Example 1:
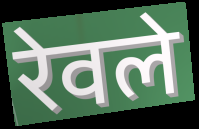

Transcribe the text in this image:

रेवले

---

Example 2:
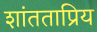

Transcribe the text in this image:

शांतताप्रिय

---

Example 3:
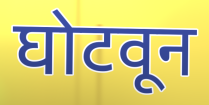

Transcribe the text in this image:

घोटवून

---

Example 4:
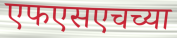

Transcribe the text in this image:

एफएसएचच्या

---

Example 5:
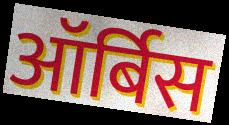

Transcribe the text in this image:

ऑर्बिस